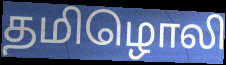
தமிழொலி